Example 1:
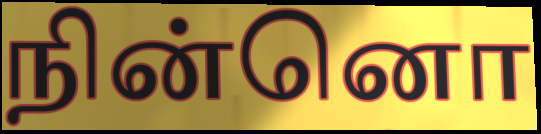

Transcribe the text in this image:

நின்னொ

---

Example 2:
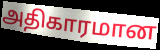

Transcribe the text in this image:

அதிகாரமான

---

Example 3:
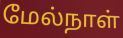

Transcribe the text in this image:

மேல்நாள்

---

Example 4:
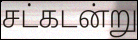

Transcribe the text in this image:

சட்கடன்று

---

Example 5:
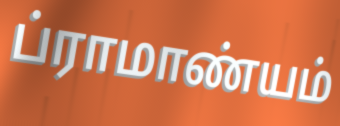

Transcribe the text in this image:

ப்ராமாண்யம்